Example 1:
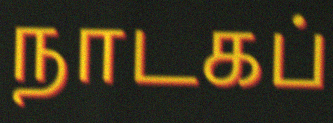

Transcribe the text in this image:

நாடகப்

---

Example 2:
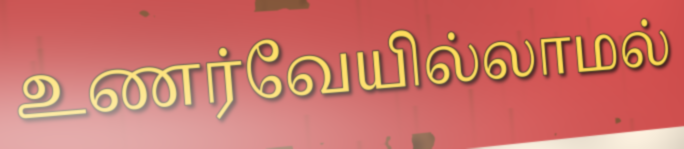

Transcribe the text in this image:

உணர்வேயில்லாமல்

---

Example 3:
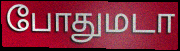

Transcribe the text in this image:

போதுமடா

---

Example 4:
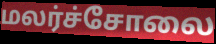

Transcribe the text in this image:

மலர்ச்சோலை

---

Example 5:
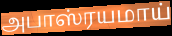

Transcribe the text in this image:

அபாஸ்ரயமாய்